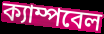
ক্যাম্পবেল